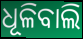
ଧୂଳିବାଲି